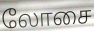
லோசை